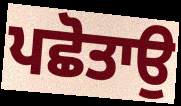
ਪਛੋਤਾਉ